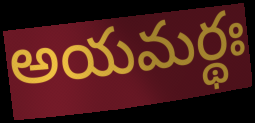
అయమర్థః